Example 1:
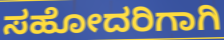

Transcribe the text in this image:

ಸಹೋದರಿಗಾಗಿ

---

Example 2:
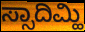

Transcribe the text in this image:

ಸ್ಸಾದಿಮ್ಹಿ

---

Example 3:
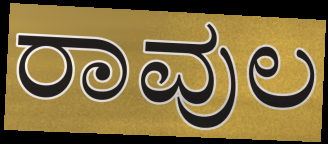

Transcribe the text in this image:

ರಾವುಲ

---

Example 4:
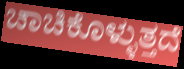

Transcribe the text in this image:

ಚಾಚಿಕೊಳ್ಳುತ್ತದೆ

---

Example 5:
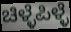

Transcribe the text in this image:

ಚಿಳ್ಳೆಪಿಳ್ಳೆ